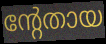
ന്റേതായ